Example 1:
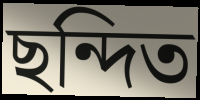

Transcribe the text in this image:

ছন্দিত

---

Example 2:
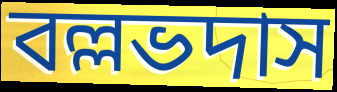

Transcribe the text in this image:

বল্লভদাস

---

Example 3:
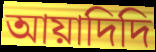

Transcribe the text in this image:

আয়াদিদি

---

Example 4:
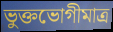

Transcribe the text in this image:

ভুক্তভোগীমাত্র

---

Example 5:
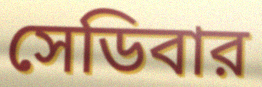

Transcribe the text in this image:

সেডিবার